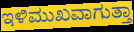
ಇಳಿಮುಖವಾಗುತ್ತಾ